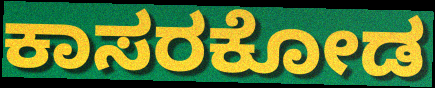
ಕಾಸರಕೋಡ